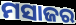
ମସାଜର